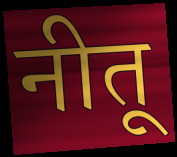
नीतू